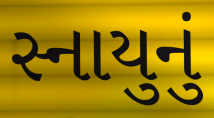
સ્નાયુનું